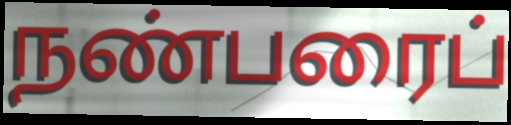
நண்பரைப்